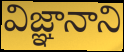
విజ్ఞానాని